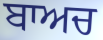
ਬਾਅਚ